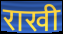
राखी